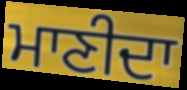
ਮਾਣੀਦਾ